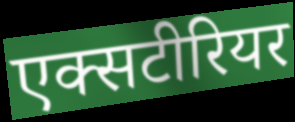
एक्सटीरियर